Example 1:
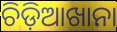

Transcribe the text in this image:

ଚିଡ଼ିଆଖାନା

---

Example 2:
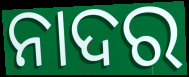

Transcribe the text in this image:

ନାଦର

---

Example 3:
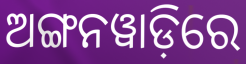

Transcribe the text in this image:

ଅଙ୍ଗନୱାଡ଼ିରେ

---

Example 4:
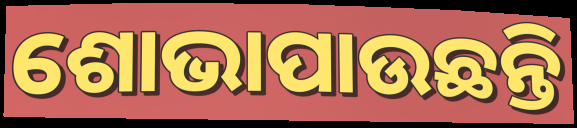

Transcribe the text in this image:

ଶୋଭାପାଉଛନ୍ତି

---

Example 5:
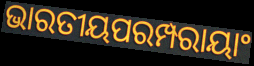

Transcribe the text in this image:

ଭାରତୀୟପରମ୍ପରାୟାଂ